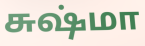
சுஷ்மா